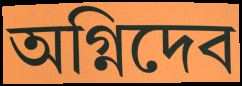
অগ্নিদেব